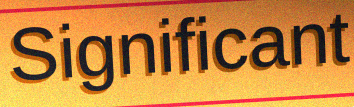
Significant